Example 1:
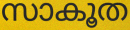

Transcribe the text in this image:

സാകൂത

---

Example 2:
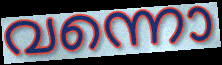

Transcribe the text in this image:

വന്നൊ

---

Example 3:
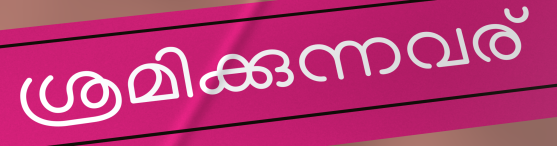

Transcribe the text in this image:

ശ്രമിക്കുന്നവര്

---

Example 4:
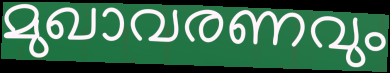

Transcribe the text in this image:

മുഖാവരണവും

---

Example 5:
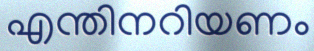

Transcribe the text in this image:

എന്തിനറിയണം